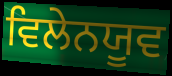
ਵਿਲੇਨਯੂਵ